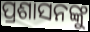
ପ୍ରଶାସନଙ୍କୁ